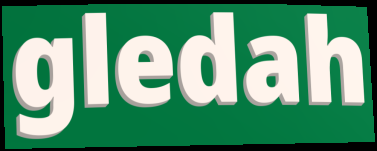
gledah